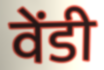
वेंडी